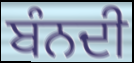
ਬੰਨਦੀ